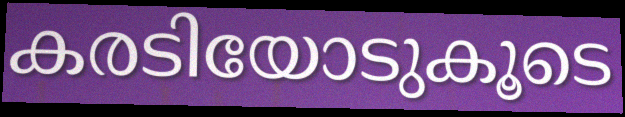
കരടിയോടുകൂടെ